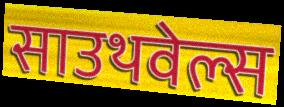
साउथवेल्स